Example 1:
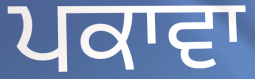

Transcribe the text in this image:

ਪਕਾਵਾ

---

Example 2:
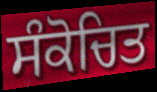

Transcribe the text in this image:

ਸੰਕੋਚਿਤ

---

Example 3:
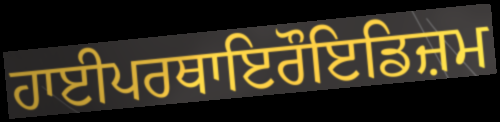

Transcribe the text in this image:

ਹਾਈਪਰਥਾਇਰੌਇਡਿਜ਼ਮ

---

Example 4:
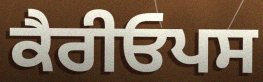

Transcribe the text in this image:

ਕੈਰੀਓਪਸ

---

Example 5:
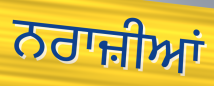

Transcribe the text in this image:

ਨਰਾਜ਼ੀਆਂ